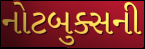
નોટબુક્સની